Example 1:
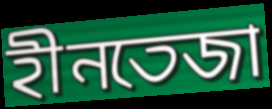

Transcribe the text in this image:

হীনতেজা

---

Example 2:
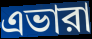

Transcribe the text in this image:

এভারা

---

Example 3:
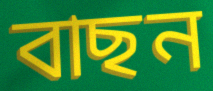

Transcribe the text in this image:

বাছন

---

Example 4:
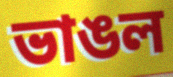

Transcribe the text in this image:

ভাঙল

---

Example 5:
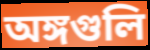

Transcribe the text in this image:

অঙ্গগুলি